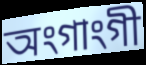
অংগাংগী